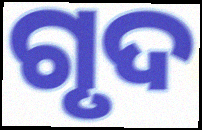
ଗୃଦ